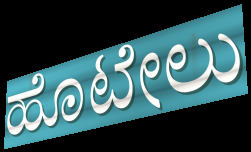
ಹೊಟೇಲು